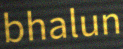
bhalun